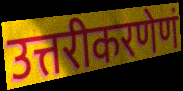
उत्तरीकरणेणं